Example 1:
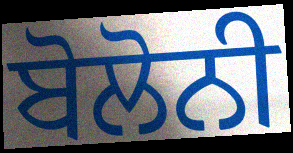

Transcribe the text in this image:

ਬੋਲੋਨੀ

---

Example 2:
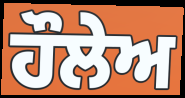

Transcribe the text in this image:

ਹੌਲੇਅ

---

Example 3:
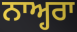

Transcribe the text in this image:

ਨਾਅ੍ਹਰਾ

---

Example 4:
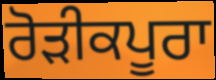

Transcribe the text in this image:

ਰੋੜੀਕਪੂਰਾ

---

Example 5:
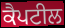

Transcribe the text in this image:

ਕੈਪਟੀਲ